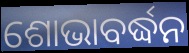
ଶୋଭାବର୍ଦ୍ଧନ